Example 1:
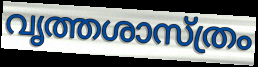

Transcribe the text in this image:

വൃത്തശാസ്ത്രം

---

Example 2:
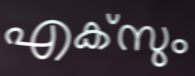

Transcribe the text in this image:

എക്‌സും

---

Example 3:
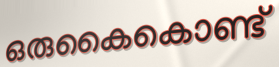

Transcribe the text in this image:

ഒരുകൈകൊണ്ട്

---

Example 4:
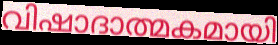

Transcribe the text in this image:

വിഷാദാത്മകമായി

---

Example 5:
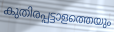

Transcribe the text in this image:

കുതിരപ്പട്ടാളത്തെയും